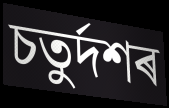
চতুৰ্দশৰ